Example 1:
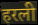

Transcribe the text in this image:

हरली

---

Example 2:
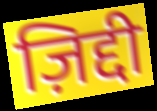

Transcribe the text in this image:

ज़िद्दी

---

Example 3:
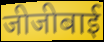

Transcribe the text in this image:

जीजीबाई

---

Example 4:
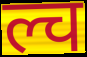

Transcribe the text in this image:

ल्च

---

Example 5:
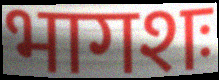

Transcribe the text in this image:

भागशः